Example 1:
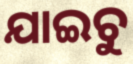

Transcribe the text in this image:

ଯାଇଚୁ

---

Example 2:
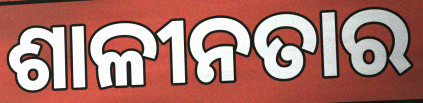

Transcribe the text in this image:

ଶାଳୀନତାର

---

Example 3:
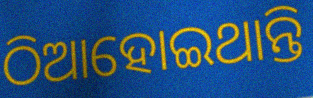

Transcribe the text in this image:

ଠିଆହୋଇଥାନ୍ତି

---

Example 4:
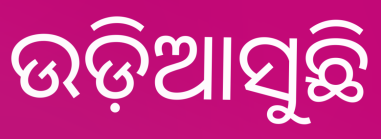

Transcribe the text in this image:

ଉଡ଼ିଆସୁଛି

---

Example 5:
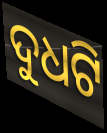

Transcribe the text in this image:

ଦୁଧଟି